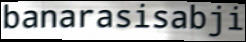
banarasisabji